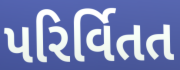
પરિર્વિતત